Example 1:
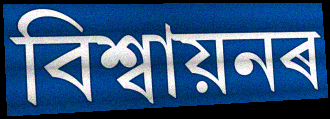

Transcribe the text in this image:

বিশ্ৱায়নৰ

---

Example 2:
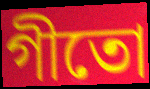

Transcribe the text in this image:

গীতো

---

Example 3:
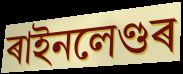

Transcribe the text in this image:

ৰাইনলেণ্ডৰ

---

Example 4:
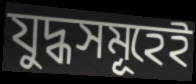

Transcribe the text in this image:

যুদ্ধসমূহেই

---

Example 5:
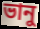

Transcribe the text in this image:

ভানু